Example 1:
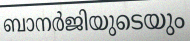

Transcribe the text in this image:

ബാനർജിയുടെയും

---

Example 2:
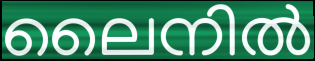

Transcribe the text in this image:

ലൈനിൽ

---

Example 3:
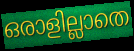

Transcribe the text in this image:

ഒരാളില്ലാതെ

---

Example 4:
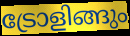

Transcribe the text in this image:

ട്രോളിങ്ങും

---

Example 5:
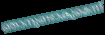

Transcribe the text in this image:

ഞാനുണ്ടാകുമെന്ന്